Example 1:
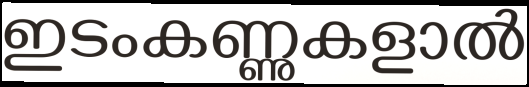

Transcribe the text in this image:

ഇടംകണ്ണുകളാൽ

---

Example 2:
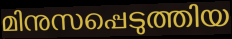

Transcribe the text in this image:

മിനുസപ്പെടുത്തിയ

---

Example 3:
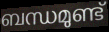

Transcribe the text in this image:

ബന്ധമുണ്ട്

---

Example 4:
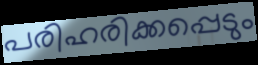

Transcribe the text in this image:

പരിഹരിക്കപ്പെടും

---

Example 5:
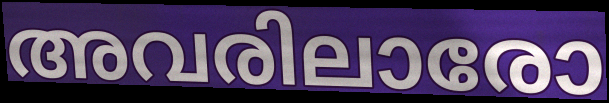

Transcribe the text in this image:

അവരിലാരോ